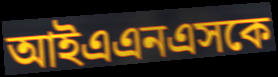
আইএএনএসকে